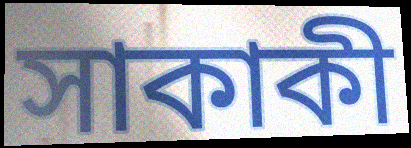
সাকাকী